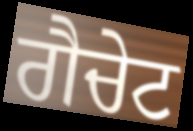
ਗੈਚੇਟ